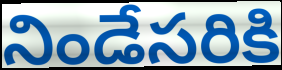
నిండేసరికి